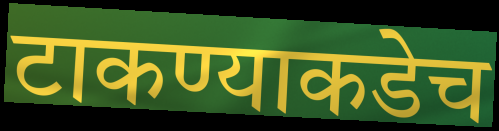
टाकण्याकडेच